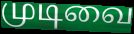
முடிவை